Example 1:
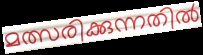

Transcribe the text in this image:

മത്സരിക്കുന്നതിൽ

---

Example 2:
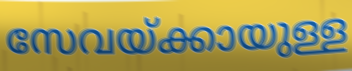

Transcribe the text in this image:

സേവയ്ക്കായുള്ള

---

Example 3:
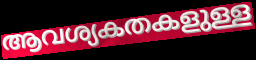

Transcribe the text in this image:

ആവശ്യകതകളുള്ള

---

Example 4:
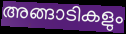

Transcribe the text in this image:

അങ്ങാടികളും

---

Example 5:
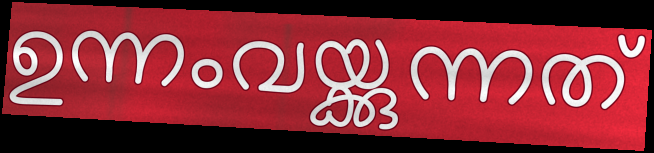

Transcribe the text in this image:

ഉന്നംവയ്ക്കുന്നത്